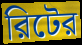
রিটের